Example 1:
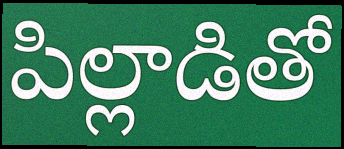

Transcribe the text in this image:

పిల్లాడితో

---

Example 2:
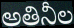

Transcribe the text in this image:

అతినీల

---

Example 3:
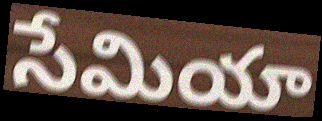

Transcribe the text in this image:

సేమియా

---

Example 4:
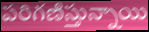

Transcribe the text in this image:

పరిగణిస్తున్నాయి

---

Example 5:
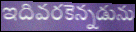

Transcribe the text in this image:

ఇదివరకెన్నడును